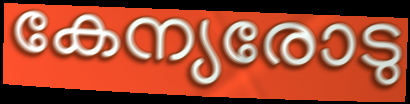
കേന്യരോടു